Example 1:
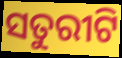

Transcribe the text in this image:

ସତୁରୀଟି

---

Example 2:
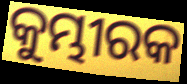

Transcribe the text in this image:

କୁମ୍ଭୀରକ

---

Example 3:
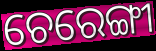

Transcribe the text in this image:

ଚେରେଙ୍ଗୀ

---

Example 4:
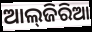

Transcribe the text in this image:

ଆଲ୍‌ଜିରିଆ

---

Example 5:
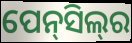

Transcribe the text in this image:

ପେନ୍‍ସିଲ୍‍ର